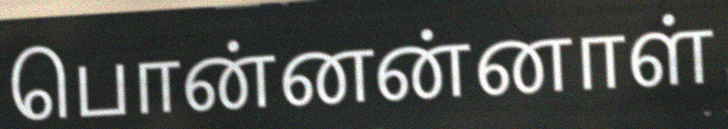
பொன்னன்னாள்